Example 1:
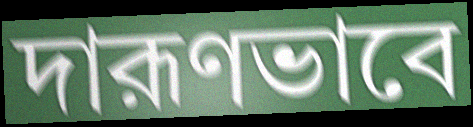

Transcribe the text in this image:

দারূণভাবে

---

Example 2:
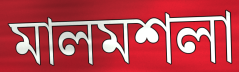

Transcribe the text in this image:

মালমশলা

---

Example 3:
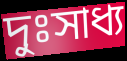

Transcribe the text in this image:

দুঃসাধ্য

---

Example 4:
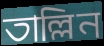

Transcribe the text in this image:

তাল্লিন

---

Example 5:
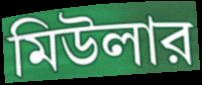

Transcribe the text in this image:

মিউলার